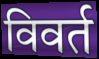
विवर्त